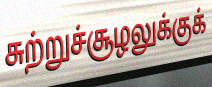
சுற்றுச்சூழலுக்குக்